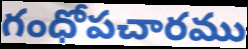
గంధోపచారము